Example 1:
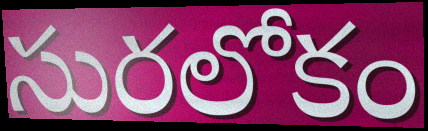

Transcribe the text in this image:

సురలోకం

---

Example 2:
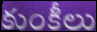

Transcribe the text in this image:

కుంకీలు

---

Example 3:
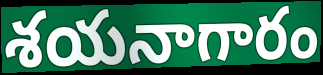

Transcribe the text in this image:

శయనాగారం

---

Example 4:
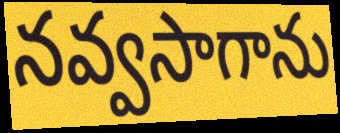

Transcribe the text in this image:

నవ్వసాగాను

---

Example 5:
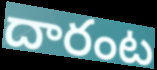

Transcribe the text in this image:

దారంట